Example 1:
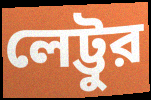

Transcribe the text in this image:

লেট্টুর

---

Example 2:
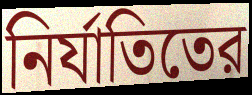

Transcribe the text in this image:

নির্যাতিতের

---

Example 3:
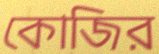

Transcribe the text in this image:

কোজির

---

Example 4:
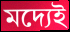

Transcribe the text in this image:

মদ্যেই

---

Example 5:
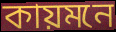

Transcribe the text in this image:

কায়মনে